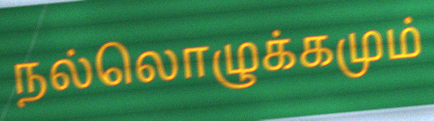
நல்லொழுக்கமும்